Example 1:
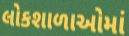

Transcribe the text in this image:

લોકશાળાઓમાં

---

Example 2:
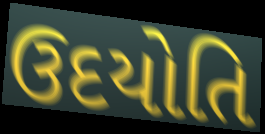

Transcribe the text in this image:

ઉદયોતિ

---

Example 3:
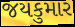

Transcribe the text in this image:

જયકુમાર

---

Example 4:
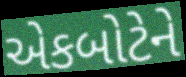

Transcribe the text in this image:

એકબોટેને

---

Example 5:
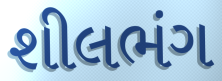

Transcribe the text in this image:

શીલભંગ